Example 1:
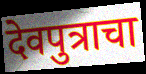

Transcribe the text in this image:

देवपुत्राचा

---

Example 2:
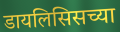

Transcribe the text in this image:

डायलिसिसच्या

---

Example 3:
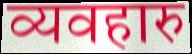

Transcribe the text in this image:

व्यवहारु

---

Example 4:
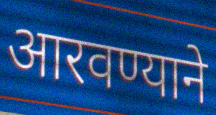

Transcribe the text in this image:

आरवण्याने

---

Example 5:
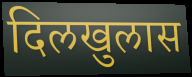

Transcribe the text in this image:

दिलखुलास